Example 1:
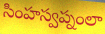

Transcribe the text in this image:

సింహస్వప్నంలా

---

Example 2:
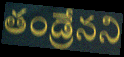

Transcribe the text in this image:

తండ్రేనని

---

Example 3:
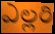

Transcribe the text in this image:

ఎల్లరి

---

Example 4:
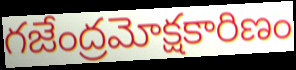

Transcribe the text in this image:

గజేంద్రమోక్షకారిణం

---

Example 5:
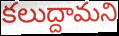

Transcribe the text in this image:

కలుద్దామని